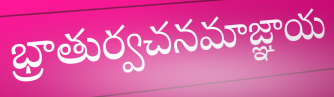
భ్రాతుర్వచనమాజ్ఞాయ